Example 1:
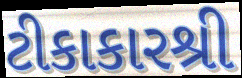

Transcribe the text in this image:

ટીકાકારશ્રી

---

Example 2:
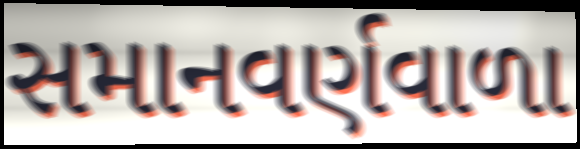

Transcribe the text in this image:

સમાનવર્ણવાળા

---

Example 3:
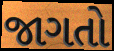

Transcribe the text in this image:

જાગતો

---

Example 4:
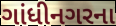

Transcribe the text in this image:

ગાંધીનગરના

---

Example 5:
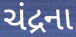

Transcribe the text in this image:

ચંદ્રના